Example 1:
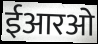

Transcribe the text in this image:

ईआरओ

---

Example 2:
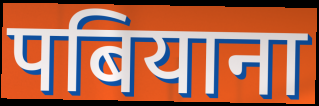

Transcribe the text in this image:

पबियाना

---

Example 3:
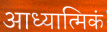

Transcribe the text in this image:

आध्यात्मिकं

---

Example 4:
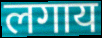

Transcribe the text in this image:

लगाय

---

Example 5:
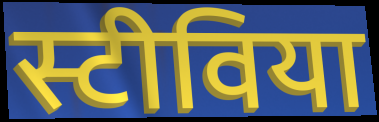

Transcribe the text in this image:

स्टीविया